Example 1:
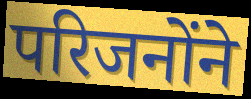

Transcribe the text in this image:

परिजनोंने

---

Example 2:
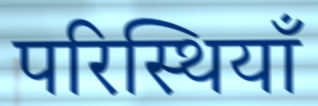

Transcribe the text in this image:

परिस्थियाँ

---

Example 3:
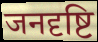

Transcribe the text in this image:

जनदृष्टि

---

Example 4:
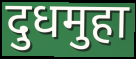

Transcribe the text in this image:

दुधमुहा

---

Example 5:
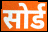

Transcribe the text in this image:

सोर्ड